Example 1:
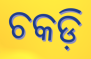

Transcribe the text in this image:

ଚକଡ଼ି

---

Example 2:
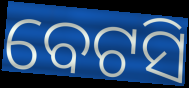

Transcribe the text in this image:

ବେଟସି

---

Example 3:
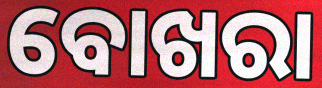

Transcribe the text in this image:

ବୋଖରା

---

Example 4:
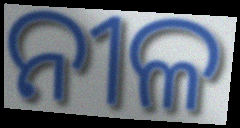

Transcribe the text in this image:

ନୀଳ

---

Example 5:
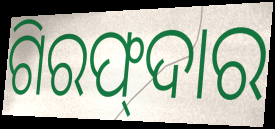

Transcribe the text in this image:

ଗିରଫ୍‍ଦାର